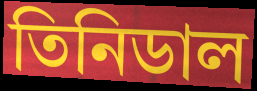
তিনিডাল